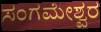
ಸಂಗಮೇಶ್ವರ